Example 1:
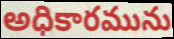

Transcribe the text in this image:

అధికారమును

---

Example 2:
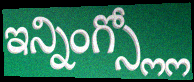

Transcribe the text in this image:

ఇన్నింగ్స్ల్లో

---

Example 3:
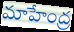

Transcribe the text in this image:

మాహేంద్ర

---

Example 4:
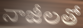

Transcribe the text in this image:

నాజీలతో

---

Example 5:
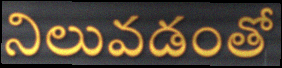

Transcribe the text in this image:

నిలువడంతో